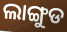
ଲାଙ୍ଗୁଡ